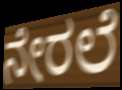
ನೇರಲೆ